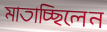
মাতাচ্ছিলেন